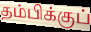
தம்பிக்குப்